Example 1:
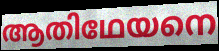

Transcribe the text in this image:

ആതിഥേയനെ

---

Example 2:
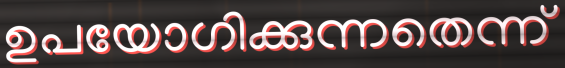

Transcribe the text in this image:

ഉപയോഗിക്കുന്നതെന്ന്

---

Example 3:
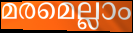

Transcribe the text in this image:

മരമെല്ലാം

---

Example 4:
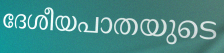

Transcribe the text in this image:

ദേശീയപാതയുടെ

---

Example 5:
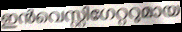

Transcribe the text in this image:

ഇൻവെസ്റ്റിഗേറ്ററുമായ